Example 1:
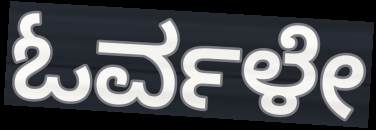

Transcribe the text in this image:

ಓರ್ವಳೇ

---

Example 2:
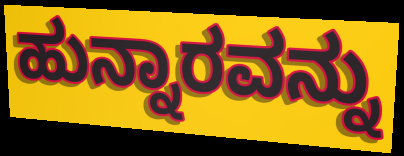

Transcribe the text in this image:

ಹುನ್ನಾರವನ್ನು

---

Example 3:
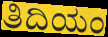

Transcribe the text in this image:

ತಿದಿಯಂ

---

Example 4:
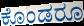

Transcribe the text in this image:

ಕೊಂಡರೂ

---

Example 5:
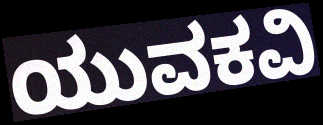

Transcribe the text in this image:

ಯುವಕವಿ